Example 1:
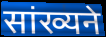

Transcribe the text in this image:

सांख्यने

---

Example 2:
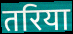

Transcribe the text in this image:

तरिया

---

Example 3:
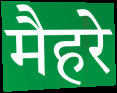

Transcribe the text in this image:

मैहरे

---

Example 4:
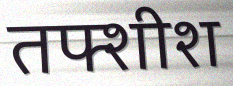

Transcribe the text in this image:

तफ्शीश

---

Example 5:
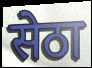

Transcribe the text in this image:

सेठा